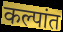
कल्पांत